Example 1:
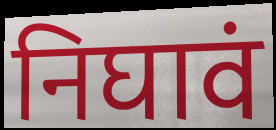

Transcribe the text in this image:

निघावं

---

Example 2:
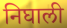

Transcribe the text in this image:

निघाली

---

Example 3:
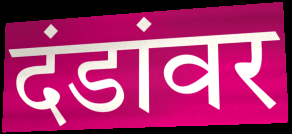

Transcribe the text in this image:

दंडांवर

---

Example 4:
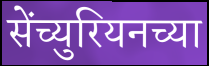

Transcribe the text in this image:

सेंच्युरियनच्या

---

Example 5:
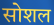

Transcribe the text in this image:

सोशल